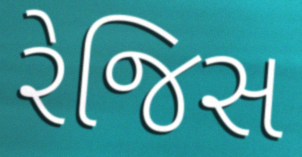
રેજિસ